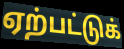
ஏற்பட்டுக்